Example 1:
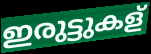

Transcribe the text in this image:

ഇരുട്ടുകള്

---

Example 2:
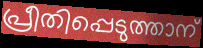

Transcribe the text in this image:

പ്രീതിപ്പെടുത്താന്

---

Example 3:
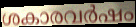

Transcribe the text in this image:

ശകാരവർഷം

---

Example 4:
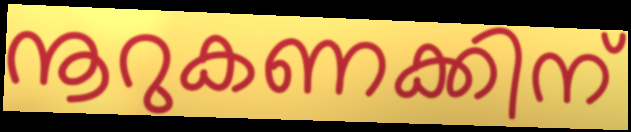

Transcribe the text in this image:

നൂറുകണക്കിന്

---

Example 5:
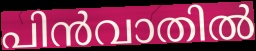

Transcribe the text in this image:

പിൻവാതിൽ